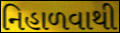
નિહાળવાથી